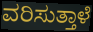
ವರಿಸುತ್ತಾಳೆ